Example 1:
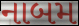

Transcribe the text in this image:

નાબમ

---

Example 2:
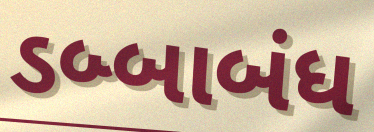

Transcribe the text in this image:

ડબ્બાબંધ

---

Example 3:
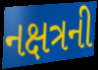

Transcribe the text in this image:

નક્ષત્રની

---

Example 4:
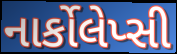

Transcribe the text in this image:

નાર્કોલેપ્સી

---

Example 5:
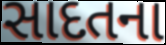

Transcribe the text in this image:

સાદતના